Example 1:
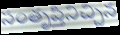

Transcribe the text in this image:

సంతృప్తినిచ్చిన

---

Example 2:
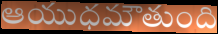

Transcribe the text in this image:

ఆయుధమౌతుంది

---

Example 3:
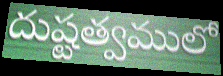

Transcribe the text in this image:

దుష్టత్వములో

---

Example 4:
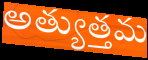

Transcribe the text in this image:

అత్యుత్తమ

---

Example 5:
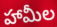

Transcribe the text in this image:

హామీల